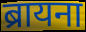
ब्रायना